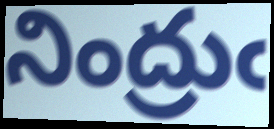
నింద్రుఁ